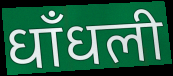
धॉँधली